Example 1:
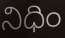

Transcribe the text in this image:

నిధిం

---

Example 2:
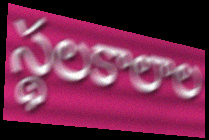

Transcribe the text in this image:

స్థలకాలాల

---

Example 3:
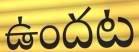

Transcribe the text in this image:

ఉందట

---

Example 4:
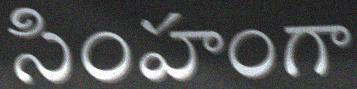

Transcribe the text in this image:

సింహంగా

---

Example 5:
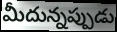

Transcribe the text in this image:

మీదున్నప్పుడు